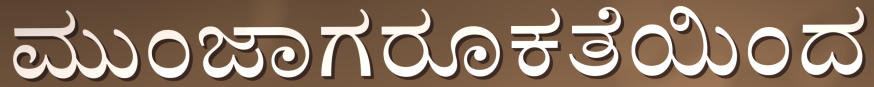
ಮುಂಜಾಗರೂಕತೆಯಿಂದ